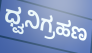
ಧ್ವನಿಗ್ರಹಣ